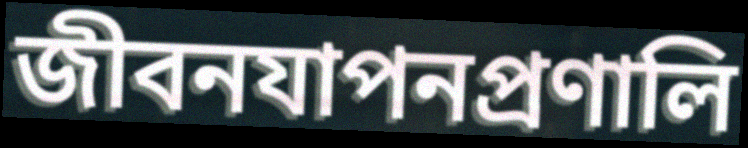
জীবনযাপনপ্রণালি